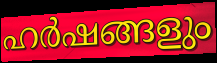
ഹർഷങ്ങളും